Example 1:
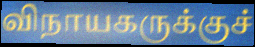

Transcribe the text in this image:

விநாயகருக்குச்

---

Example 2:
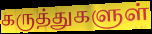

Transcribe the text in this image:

கருத்துகளுள்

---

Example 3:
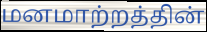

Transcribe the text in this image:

மனமாற்றத்தின்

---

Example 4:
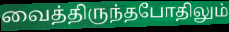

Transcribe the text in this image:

வைத்திருந்தபோதிலும்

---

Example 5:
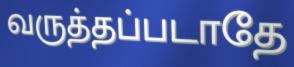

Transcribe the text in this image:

வருத்தப்படாதே